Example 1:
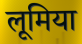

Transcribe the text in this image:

लूमिया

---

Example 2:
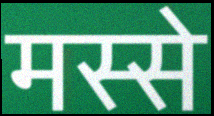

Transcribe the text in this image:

मस्से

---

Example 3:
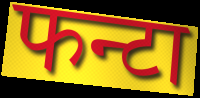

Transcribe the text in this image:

फन्टा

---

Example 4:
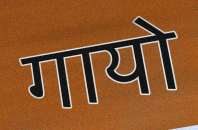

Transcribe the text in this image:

गायो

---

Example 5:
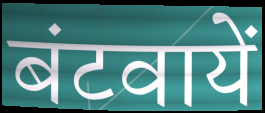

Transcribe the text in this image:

बंटवायें